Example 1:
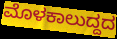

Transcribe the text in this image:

ಮೊಳಕಾಲುದ್ದದ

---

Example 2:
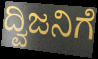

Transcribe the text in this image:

ದ್ವಿಜನಿಗೆ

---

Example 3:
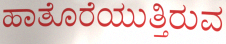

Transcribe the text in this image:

ಹಾತೊರೆಯುತ್ತಿರುವ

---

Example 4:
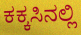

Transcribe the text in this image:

ಕಕ್ಕಸಿನಲ್ಲಿ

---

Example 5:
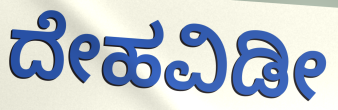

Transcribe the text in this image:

ದೇಹವಿಡೀ